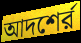
আদশের্র